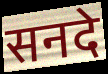
सनदे